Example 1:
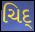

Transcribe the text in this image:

ચિદ્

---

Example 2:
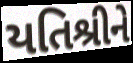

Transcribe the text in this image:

યતિશ્રીને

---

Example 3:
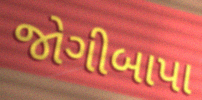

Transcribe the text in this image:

જોગીબાપા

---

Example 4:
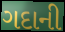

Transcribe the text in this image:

ગદાની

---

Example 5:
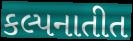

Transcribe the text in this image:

કલ્પનાતીત